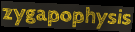
zygapophysis